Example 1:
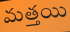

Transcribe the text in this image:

మత్తయి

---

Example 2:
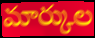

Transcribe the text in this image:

మార్కుల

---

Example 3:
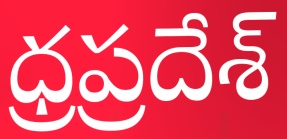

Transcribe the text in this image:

ధ్రప్రదేశ్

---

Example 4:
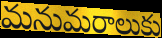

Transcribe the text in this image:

మనుమరాలుకు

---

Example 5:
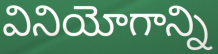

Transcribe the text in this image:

వినియోగాన్ని